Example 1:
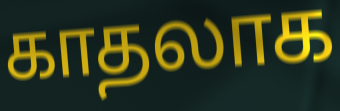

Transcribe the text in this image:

காதலாக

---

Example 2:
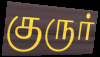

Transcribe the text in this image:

குருர்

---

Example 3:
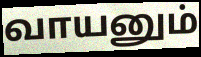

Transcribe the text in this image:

வாயனும்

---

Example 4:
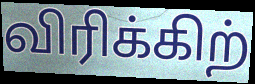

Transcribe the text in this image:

விரிக்கிற்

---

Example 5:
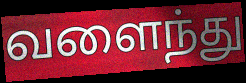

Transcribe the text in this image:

வளைந்து